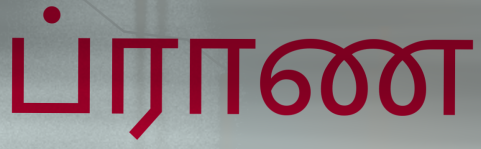
ப்ராண